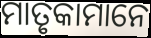
ମାତୃକାମାନେ